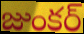
జుంకర్